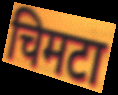
चिमटा